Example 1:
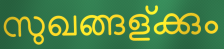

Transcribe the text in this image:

സുഖങ്ങള്ക്കും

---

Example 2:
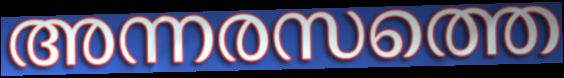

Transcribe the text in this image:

അന്നരസത്തെ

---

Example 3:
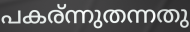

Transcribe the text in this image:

പകര്ന്നുതന്നതു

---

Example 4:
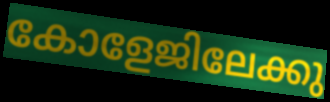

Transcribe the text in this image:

കോളേജിലേക്കു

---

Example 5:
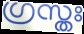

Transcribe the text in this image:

ഗ്രസ്തഃ